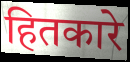
हितकारे